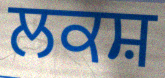
ਲਕਸ਼